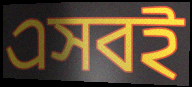
এসবই